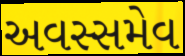
અવસ્સમેવ